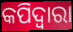
କପିଦ୍ୱାରା